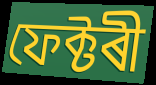
ফেক্টৰী